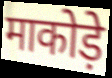
माकोड़े